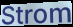
Strom